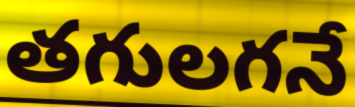
తగులగనే